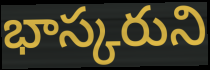
భాస్కరుని